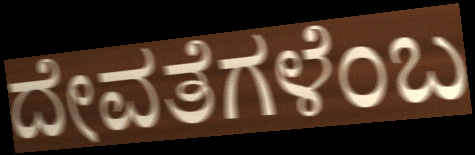
ದೇವತೆಗಳೆಂಬ